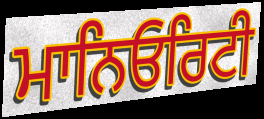
ਮਾਨਿਓਰਿਟੀ